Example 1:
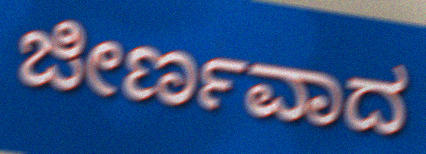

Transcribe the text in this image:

ಜೀರ್ಣವಾದ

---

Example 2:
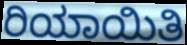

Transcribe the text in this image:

ರಿಯಾಯಿತಿ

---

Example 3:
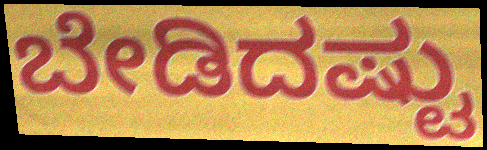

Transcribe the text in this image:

ಬೇಡಿದಷ್ಟು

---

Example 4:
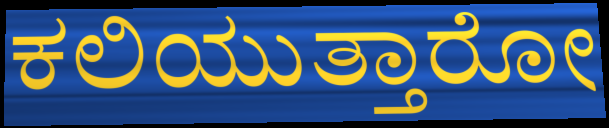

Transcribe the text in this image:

ಕಲಿಯುತ್ತಾರೋ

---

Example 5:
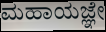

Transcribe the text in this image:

ಮಹಾಯಜ್ಞೇ